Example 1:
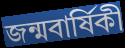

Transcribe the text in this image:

জন্মবার্ষিকী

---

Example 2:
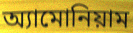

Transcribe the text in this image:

অ্যামোনিয়াম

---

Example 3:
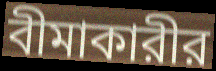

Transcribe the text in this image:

বীমাকারীর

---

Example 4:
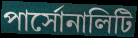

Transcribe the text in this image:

পার্সোনালিটি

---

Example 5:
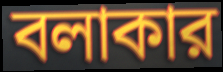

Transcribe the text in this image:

বলাকার